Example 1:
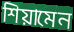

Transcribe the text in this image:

শিয়ামেন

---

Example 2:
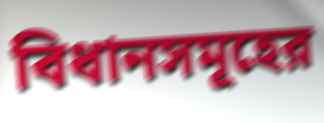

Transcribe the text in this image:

বিধানসমূহের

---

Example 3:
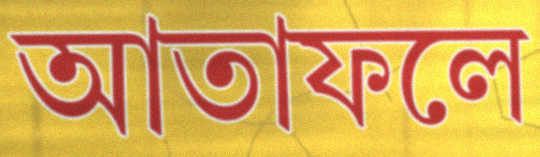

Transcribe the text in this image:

আতাফলে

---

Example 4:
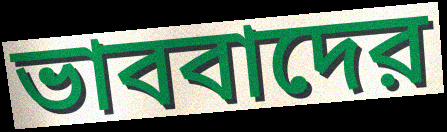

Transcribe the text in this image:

ভাববাদের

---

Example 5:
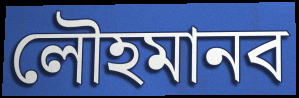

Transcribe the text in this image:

লৌহমানব